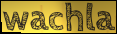
wachla